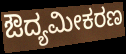
ಔದ್ಯಮೀಕರಣ